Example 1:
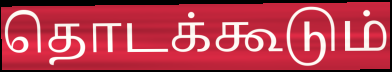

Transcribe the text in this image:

தொடக்கூடும்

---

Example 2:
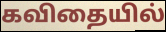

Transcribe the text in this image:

கவிதையில்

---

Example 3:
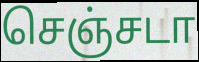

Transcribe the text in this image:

செஞ்சடா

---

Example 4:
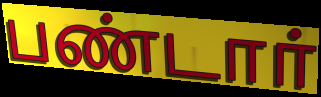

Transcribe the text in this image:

பண்டார்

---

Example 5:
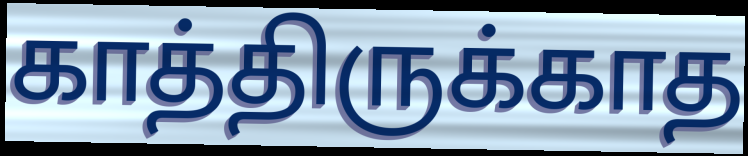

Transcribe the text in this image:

காத்திருக்காத